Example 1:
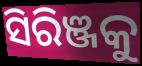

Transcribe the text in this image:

ସିରିଞ୍ଜକୁ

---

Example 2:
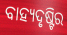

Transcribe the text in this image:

ବାହ୍ୟଦୃଷ୍ଟିର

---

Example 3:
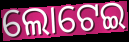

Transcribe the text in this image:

ଲୋଟେଇ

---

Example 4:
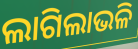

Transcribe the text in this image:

ଲାଗିଲାଭଳି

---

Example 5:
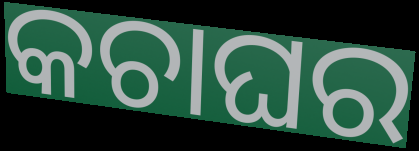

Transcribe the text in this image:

କଚାଘର